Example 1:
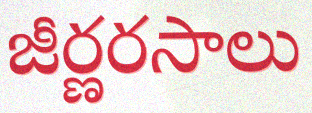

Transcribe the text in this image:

జీర్ణరసాలు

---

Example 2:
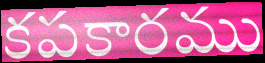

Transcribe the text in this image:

కపకారము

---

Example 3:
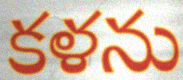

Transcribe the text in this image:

కళను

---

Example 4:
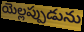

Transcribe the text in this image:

యెల్లప్పుడును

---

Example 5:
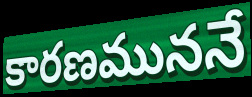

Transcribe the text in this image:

కారణముననే